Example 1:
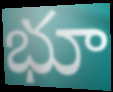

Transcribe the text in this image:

భూ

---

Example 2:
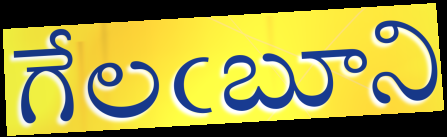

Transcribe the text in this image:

గేలఁబూని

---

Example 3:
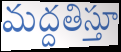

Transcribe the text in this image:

మద్దతిస్తూ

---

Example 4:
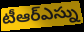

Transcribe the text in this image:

టీఆర్ఎస్ను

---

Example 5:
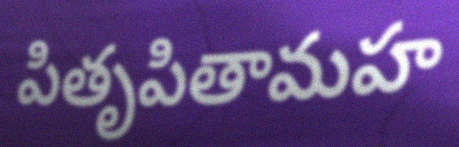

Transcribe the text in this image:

పితృపితామహ